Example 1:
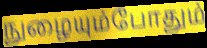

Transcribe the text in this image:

நுழையும்போதும்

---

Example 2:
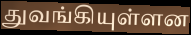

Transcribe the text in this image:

துவங்கியுள்ளன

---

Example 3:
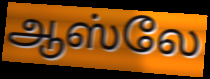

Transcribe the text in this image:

ஆஸ்லே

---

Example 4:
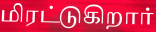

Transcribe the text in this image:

மிரட்டுகிறார்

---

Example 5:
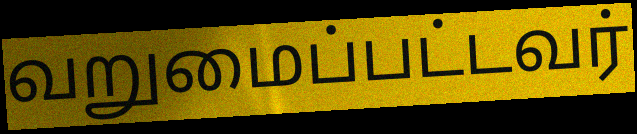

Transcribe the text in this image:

வறுமைப்பட்டவர்